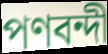
পণবন্দী